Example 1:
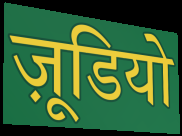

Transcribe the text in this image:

ज़ूडियो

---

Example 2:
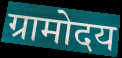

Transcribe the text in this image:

ग्रामोदय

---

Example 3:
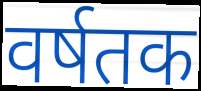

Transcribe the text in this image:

वर्षतक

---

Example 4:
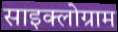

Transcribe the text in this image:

साइक्लोग्राम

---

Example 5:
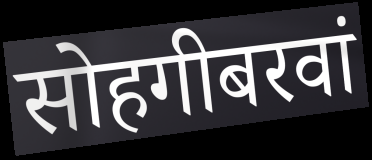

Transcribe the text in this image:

सोहगीबरवां